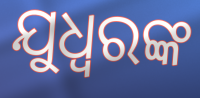
ଯୁଧ୍ଵରଙ୍କ